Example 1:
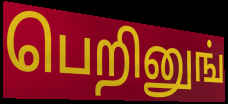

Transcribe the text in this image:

பெறினுங்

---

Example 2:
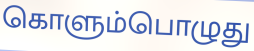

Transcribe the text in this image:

கொளும்பொழுது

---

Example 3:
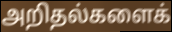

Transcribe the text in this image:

அறிதல்களைக்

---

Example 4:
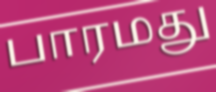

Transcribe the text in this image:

பாரமது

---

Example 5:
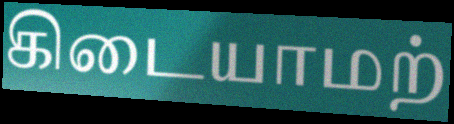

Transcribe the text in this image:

கிடையாமற்